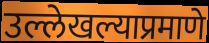
उल्लेखल्याप्रमाणे